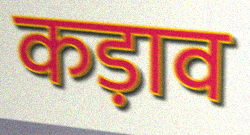
कड़ाव